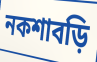
নকশাবড়ি